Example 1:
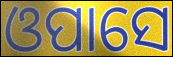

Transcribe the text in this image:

ଓପାସେ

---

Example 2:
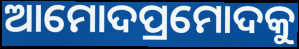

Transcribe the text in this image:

ଆମୋଦପ୍ରମୋଦକୁ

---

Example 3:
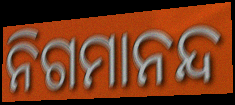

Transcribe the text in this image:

ନିଗମାନନ୍ଦ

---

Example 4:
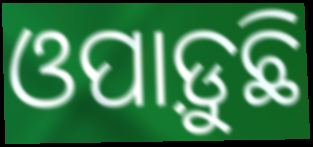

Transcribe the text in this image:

ଓପାଡ଼ୁଛି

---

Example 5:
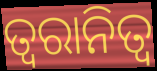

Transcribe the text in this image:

ତ୍ୱରାନିତ୍ଵ